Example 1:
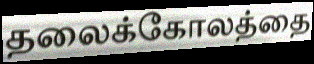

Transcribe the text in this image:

தலைக்கோலத்தை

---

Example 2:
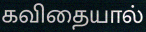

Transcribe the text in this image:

கவிதையால்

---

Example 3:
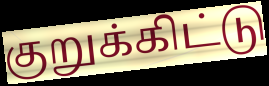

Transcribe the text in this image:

குறுக்கிட்டு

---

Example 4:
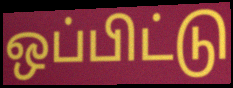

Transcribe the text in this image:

ஒப்பிட்டு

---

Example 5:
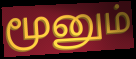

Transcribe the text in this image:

மூனும்